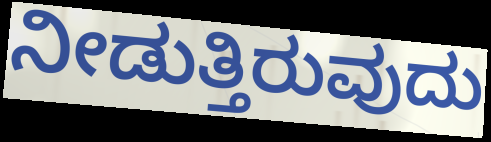
ನೀಡುತ್ತಿರುವುದು